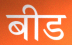
बीड